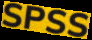
SPSS